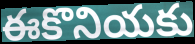
ఈకొనియకు